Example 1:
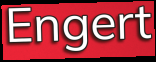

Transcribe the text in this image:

Engert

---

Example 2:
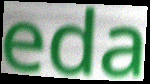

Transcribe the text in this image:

eda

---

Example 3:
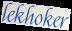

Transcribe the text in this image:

lekhoker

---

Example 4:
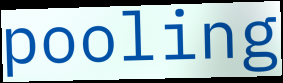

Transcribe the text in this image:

pooling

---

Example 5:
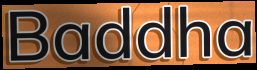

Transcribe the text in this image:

Baddha